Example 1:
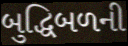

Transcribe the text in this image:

બુદ્ધિબળની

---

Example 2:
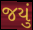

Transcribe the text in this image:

જયું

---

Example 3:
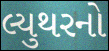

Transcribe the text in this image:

લ્યુથરનો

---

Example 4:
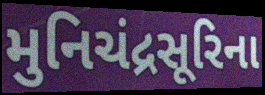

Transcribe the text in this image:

મુનિચંદ્રસૂરિના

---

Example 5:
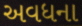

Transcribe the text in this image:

અવધના